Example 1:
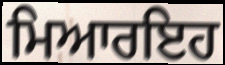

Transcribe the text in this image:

ਮਿਆਰਇਹ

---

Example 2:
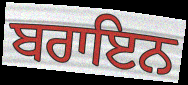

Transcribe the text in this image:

ਬਰਾਇਨ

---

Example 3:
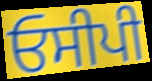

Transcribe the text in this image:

ਓਸੀਪੀ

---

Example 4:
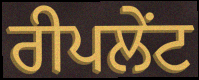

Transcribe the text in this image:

ਰੀਪਲੇਂਟ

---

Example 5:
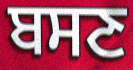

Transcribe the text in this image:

ਬਸਣ